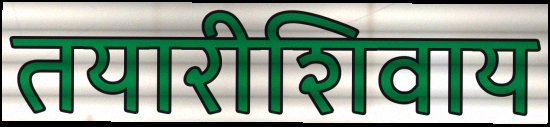
तयारीशिवाय